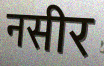
नसीर